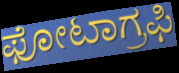
ಫೋಟಾಗ್ರಫಿ